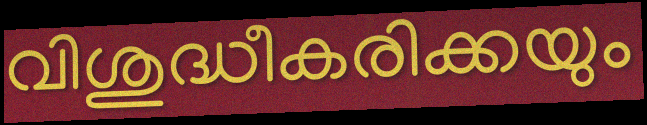
വിശുദ്ധീകരിക്കയും